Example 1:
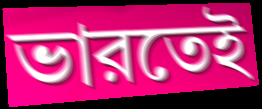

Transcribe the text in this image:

ভারতেই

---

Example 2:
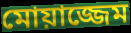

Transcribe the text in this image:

মোয়াজ্জেম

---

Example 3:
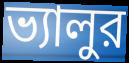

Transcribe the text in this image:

ভ্যালুর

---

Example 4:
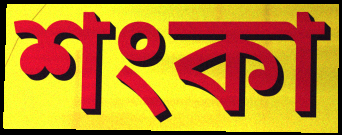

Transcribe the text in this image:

শংকা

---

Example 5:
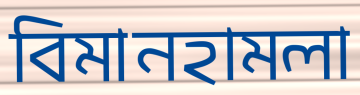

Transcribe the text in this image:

বিমানহামলা